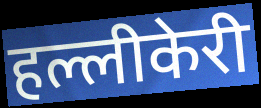
हल्लीकेरी